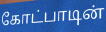
கோட்பாடின்